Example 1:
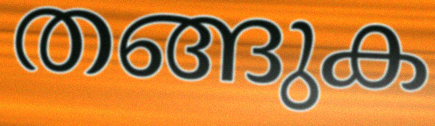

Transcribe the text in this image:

തങ്ങുക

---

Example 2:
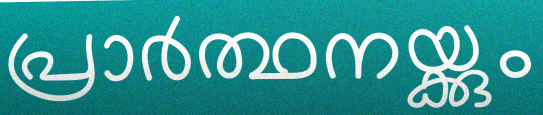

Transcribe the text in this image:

പ്രാർത്ഥനയ്ക്കും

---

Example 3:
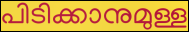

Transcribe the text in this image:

പിടിക്കാനുമുള്ള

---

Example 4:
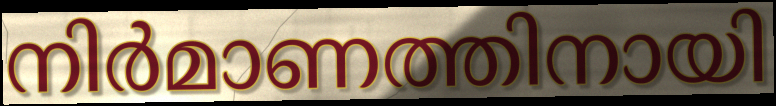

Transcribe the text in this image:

നിർമാണത്തിനായി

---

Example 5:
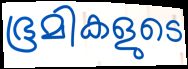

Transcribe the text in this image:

ഭൂമികളുടെ